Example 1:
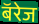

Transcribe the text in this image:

बॅरेज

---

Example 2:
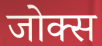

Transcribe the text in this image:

जोक्स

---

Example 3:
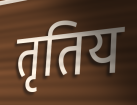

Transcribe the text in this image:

तृतिय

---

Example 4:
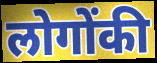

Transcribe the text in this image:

लोगोंकी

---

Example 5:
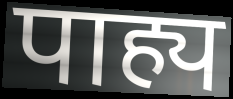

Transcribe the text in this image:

पाह्य